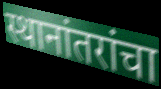
स्थानांतरांचा